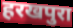
हरखपुरा